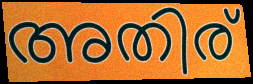
അതിര്